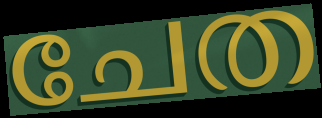
ചേത